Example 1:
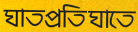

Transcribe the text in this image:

ঘাতপ্রতিঘাতে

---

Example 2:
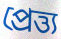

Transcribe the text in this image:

প্রেত্ত্য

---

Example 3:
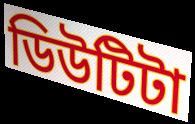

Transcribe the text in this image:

ডিউটিটা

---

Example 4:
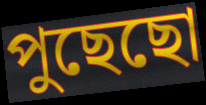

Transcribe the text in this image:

পুছেছো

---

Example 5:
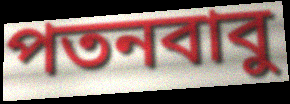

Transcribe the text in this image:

পতনবাবু